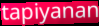
tapiyanan